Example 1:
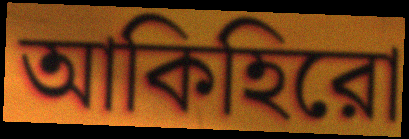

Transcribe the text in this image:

আকিহিরো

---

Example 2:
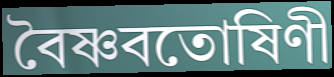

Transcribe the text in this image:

বৈষ্ণবতোষিণী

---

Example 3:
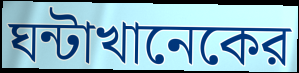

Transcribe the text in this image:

ঘন্টাখানেকের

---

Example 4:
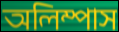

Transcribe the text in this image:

অলিম্পাস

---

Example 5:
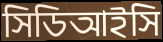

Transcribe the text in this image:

সিডিআইসি